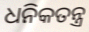
ଧନିକତନ୍ତ୍ର